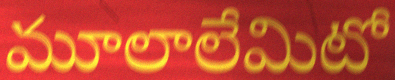
మూలాలేమిటో